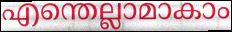
എന്തെല്ലാമാകാം